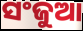
ସଂଜୁଆ